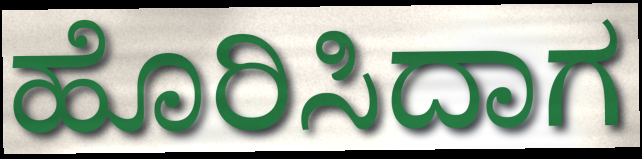
ಹೊರಿಸಿದಾಗ